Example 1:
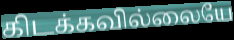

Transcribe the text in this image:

கிடக்கவில்லையே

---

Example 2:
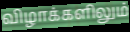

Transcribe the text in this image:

விழாக்களிலும்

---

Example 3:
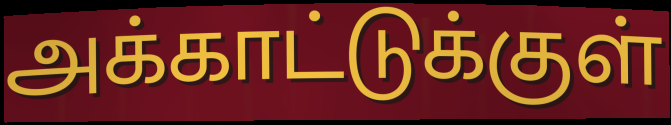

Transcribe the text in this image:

அக்காட்டுக்குள்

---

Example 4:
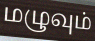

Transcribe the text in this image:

மழுவும்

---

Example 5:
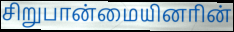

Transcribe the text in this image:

சிறுபான்மையினரின்